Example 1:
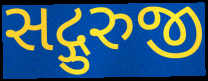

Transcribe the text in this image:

સદ્ગુરુજી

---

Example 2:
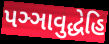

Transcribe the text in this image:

પઞ્ઞાવુદ્ધેહિ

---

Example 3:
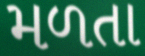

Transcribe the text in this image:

મળતા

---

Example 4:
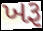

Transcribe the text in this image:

ખરૂ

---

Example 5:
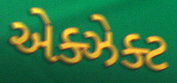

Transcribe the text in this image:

એક્ઝેક્ટ